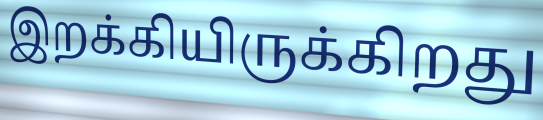
இறக்கியிருக்கிறது